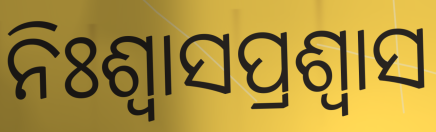
ନିଃଶ୍ୱାସପ୍ରଶ୍ୱାସ